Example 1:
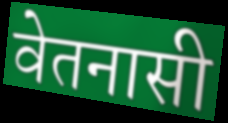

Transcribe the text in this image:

वेतनासी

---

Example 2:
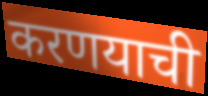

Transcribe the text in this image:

करणयाची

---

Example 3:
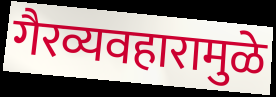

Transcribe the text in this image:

गैरव्यवहारामुळे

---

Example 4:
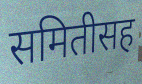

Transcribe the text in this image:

समितीसह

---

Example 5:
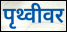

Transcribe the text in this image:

पृथ्वीवर